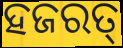
ହଜରତ୍